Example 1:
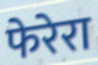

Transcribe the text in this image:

फेरेरा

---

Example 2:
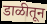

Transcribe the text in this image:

डाळीतून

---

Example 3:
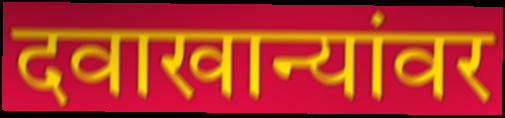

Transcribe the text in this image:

दवाखान्यांवर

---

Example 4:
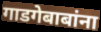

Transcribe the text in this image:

गाडगेबाबांना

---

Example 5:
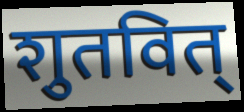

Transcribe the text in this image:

श्रुतवित्